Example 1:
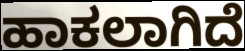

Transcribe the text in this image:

ಹಾಕಲಾಗಿದೆ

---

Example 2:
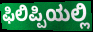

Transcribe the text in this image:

ಫಿಲಿಪ್ಪಿಯಲ್ಲಿ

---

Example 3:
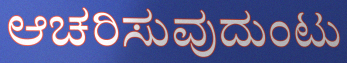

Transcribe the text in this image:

ಆಚರಿಸುವುದುಂಟು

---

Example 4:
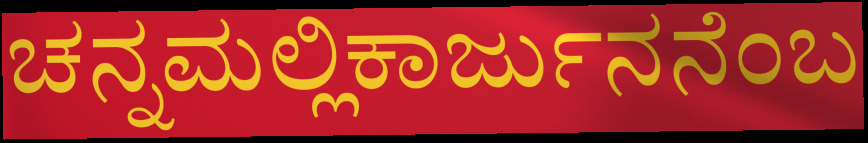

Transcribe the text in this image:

ಚನ್ನಮಲ್ಲಿಕಾರ್ಜುನನೆಂಬ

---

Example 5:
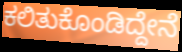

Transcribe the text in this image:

ಕಲಿತುಕೊಂಡಿದ್ದೇನೆ